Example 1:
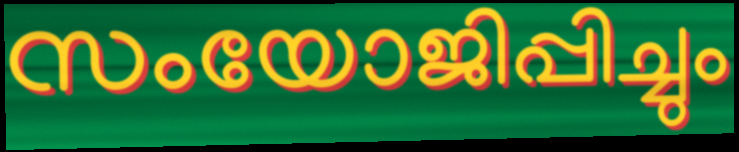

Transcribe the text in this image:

സംയോജിപ്പിച്ചും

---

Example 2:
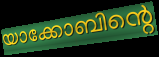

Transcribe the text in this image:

യാക്കോബിന്റെ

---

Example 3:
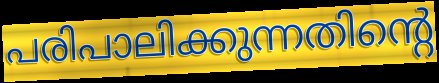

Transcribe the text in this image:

പരിപാലിക്കുന്നതിന്റെ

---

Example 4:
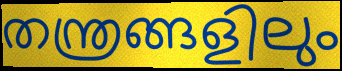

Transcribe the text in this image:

തന്ത്രങ്ങളിലും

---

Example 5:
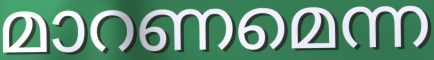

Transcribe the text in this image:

മാറണമെന്ന